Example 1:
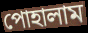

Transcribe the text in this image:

পোহালাম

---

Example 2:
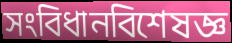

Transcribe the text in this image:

সংবিধানবিশেষজ্ঞ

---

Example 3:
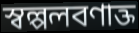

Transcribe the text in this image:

স্বল্পলবণাক্ত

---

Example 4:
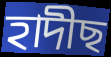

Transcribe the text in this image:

হাদীছ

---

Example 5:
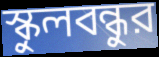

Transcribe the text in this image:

স্কুলবন্ধুর